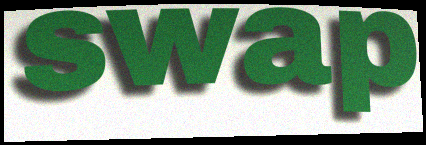
swap